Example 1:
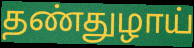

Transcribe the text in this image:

தண்துழாய்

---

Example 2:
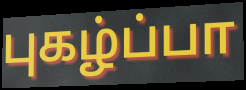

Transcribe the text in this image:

புகழ்ப்பா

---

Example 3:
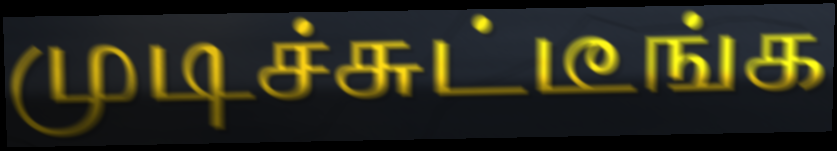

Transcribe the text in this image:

முடிச்சுட்டீங்க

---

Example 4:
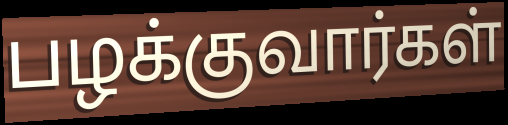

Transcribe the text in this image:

பழக்குவார்கள்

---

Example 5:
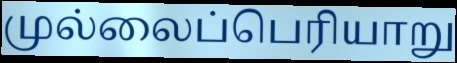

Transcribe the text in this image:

முல்லைப்பெரியாறு